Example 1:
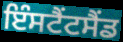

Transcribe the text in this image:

ਇੰਸਟੈਂਟਸੈਂਡ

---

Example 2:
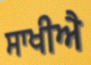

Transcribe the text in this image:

ਸਾਖੀਐ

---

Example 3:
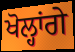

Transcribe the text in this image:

ਖੋਲ੍ਹਾਂਗੇ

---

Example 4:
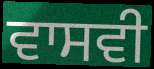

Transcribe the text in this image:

ਵਾਸਵੀ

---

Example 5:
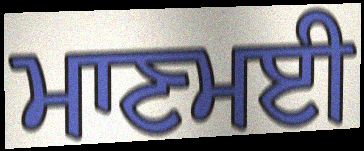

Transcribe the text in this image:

ਮਾਣਮਈ